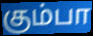
கும்பா